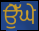
ਉੇੱਘੇ